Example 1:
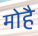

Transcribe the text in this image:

मोहै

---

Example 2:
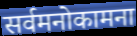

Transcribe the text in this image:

सर्वमनोकामना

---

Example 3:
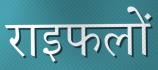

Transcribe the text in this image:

राइफलों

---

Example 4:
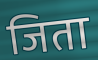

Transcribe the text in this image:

जिता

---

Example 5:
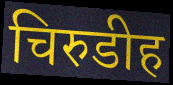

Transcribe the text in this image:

चिरुडीह